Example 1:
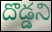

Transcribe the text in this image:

దొడ్డని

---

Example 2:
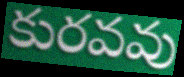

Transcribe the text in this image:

కురవవు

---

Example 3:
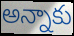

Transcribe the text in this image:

అన్నాకు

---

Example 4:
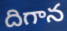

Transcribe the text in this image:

దిగాన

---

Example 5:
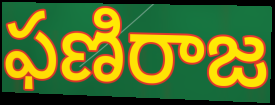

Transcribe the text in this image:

ఫణిరాజ